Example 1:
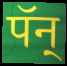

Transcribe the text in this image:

पॅन्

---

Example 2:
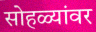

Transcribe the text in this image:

सोहळ्यांवर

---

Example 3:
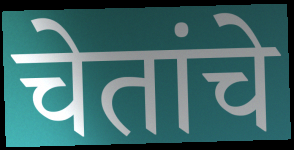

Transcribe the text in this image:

चेतांचे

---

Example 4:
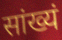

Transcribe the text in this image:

सांख्यं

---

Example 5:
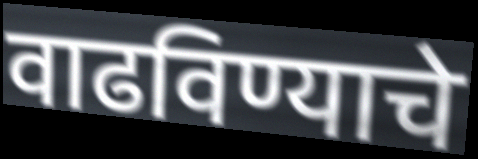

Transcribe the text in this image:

वाढविण्याचे